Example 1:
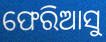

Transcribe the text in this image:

ଫେରିଆସୁ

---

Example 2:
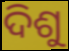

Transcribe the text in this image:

ଦିଶୁ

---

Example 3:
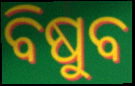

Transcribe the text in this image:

ବିଷୁବ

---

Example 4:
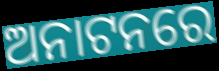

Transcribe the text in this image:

ଅନାଟନରେ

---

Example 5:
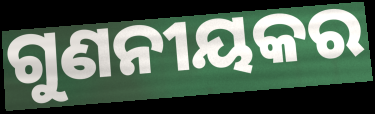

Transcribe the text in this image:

ଗୁଣନୀୟକର